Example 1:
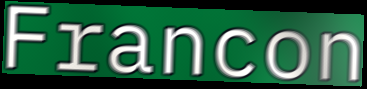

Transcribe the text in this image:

Francon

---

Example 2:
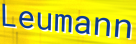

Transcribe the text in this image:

Leumann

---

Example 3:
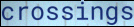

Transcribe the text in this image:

crossings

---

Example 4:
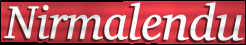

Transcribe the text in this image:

Nirmalendu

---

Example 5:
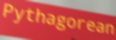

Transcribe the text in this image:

Pythagorean